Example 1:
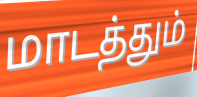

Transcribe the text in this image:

மாடத்தும்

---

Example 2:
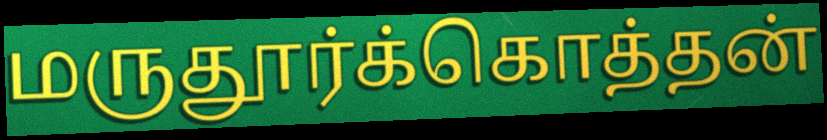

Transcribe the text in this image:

மருதூர்க்கொத்தன்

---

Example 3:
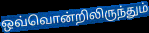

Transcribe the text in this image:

ஒவ்வொன்றிலிருந்தும்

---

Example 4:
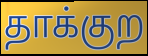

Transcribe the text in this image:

தாக்குற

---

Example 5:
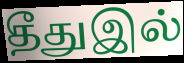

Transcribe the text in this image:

தீதுஇல்